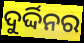
ଦୁର୍ଦ୍ଦିନର